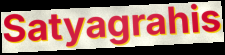
Satyagrahis